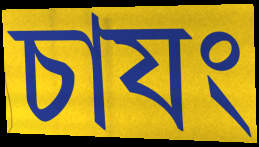
চাযং